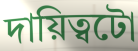
দায়িত্বটো